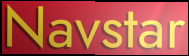
Navstar